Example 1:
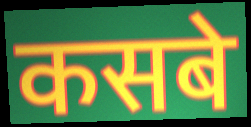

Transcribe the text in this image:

कसबे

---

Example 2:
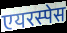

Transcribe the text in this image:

एयरस्पेस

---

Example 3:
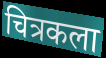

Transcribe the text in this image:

चित्रकला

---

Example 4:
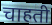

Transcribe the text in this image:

चाहती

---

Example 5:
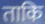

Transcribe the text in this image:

ताकि